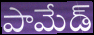
పామేడ్